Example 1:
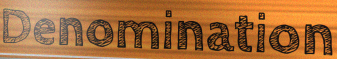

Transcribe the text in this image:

Denomination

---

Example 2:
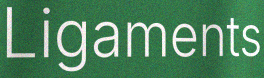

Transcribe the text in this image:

Ligaments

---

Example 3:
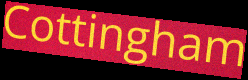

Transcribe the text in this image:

Cottingham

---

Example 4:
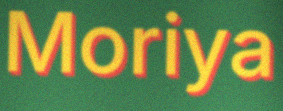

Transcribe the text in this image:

Moriya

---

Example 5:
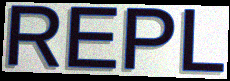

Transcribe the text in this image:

REPL